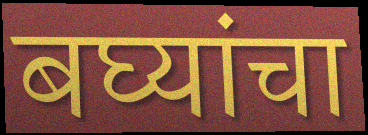
बघ्यांचा